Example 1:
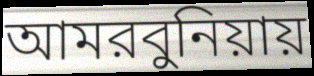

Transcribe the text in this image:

আমরবুনিয়ায়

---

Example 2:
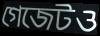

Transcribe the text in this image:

গেজেটও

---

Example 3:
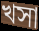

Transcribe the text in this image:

খসা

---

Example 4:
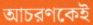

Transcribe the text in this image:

আচরণকেই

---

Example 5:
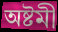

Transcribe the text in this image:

অষ্টমী